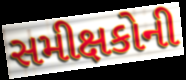
સમીક્ષકોની